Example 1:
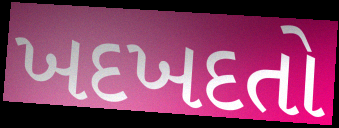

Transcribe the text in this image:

ખદખદતો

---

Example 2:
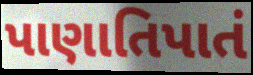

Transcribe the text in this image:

પાણાતિપાતં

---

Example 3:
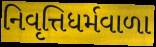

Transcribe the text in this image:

નિવૃત્તિધર્મવાળા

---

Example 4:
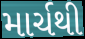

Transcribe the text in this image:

માર્ચથી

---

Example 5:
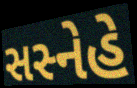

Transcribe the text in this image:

સસ્નેહે